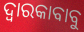
ଦ୍ୱାରକାବାବୁ